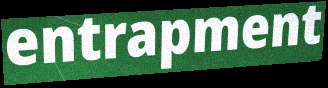
entrapment